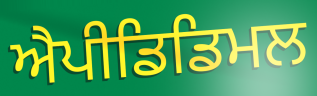
ਐਪੀਡਿਡਿਮਲ